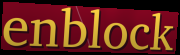
enblock